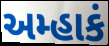
અમ્હાકં